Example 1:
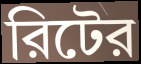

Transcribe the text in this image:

রিটের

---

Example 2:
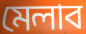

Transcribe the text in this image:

মেলাব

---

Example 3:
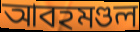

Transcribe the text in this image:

আবহমণ্ডল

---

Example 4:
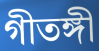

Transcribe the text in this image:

গীতঙ্গী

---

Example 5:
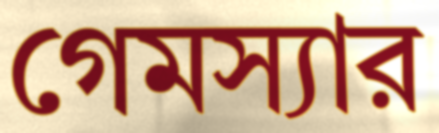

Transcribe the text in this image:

গেমস্যার